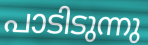
പാടിടുന്നു